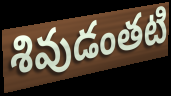
శివుడంతటి